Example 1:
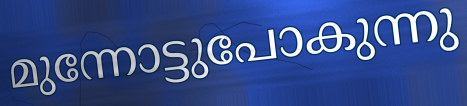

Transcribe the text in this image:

മുന്നോട്ടുപോകുന്നു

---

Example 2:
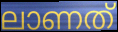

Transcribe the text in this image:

ലാണത്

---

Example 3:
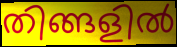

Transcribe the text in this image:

തിങ്ങളിൽ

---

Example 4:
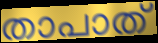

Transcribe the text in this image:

താപാത്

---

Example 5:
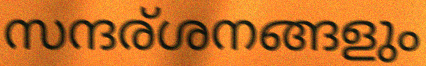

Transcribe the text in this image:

സന്ദര്ശനങ്ങളും